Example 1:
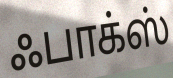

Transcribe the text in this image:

ஃபாக்ஸ்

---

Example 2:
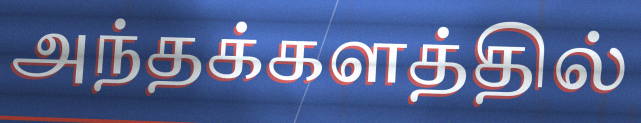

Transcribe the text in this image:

அந்தக்களத்தில்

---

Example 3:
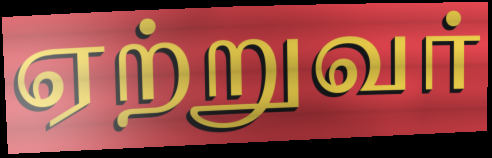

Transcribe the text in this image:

ஏற்றுவர்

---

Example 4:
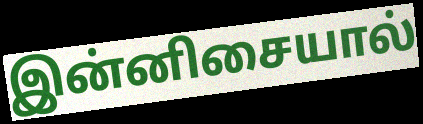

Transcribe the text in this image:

இன்னிசையால்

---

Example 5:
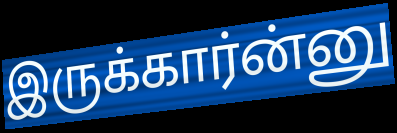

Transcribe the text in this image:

இருக்கார்ன்னு